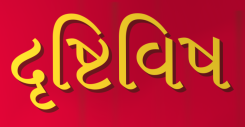
દૃષ્ટિવિષ